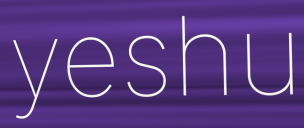
yeshu